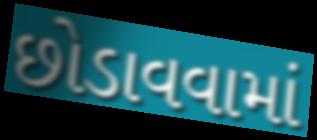
છોડાવવામાં